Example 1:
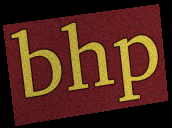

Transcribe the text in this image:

bhp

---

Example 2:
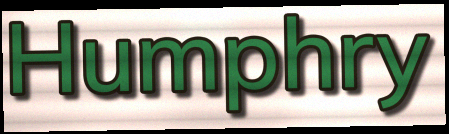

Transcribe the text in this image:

Humphry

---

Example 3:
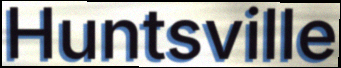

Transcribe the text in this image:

Huntsville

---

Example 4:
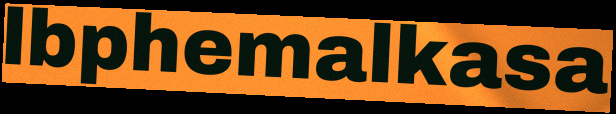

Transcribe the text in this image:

lbphemalkasa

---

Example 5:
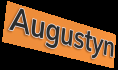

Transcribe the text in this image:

Augustyn